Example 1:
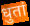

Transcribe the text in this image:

धुतां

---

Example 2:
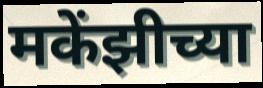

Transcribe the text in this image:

मकेंझीच्या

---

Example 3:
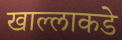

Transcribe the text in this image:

खाल्लाकडे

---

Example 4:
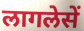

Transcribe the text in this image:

लागलेसें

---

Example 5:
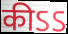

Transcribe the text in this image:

कीऽऽ